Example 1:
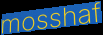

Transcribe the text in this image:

mosshaf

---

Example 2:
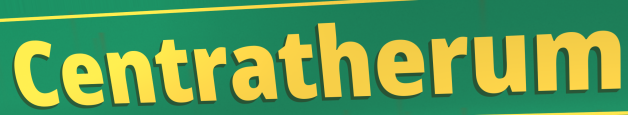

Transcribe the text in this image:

Centratherum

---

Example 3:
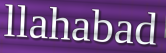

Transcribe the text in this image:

llahabad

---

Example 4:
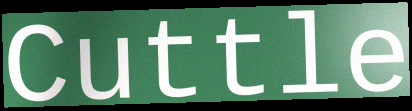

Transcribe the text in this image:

Cuttle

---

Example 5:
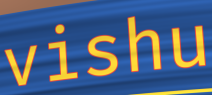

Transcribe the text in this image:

vishu